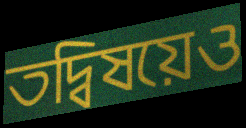
তদ্বিষয়েও